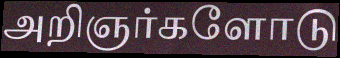
அறிஞர்களோடு